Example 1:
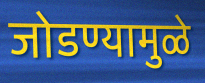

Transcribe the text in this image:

जोडण्यामुळे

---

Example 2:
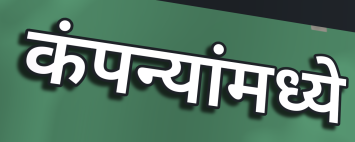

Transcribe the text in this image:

कंपन्यांमध्ये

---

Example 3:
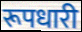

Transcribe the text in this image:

रूपधारी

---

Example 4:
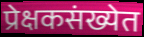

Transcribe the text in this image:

प्रेक्षकसंख्येत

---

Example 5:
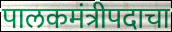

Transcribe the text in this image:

पालकमंत्रीपदाचा